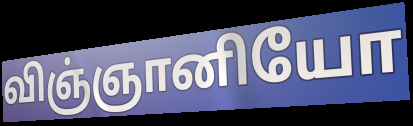
விஞ்ஞானியோ